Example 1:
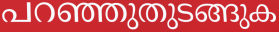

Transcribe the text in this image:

പറഞ്ഞുതുടങ്ങുക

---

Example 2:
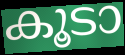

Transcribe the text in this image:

കൂടാ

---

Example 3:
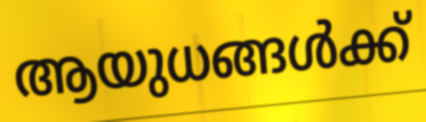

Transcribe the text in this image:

ആയുധങ്ങൾക്ക്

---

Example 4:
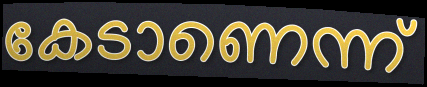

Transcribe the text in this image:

കേടാണെന്ന്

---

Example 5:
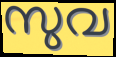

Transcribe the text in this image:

സുവ